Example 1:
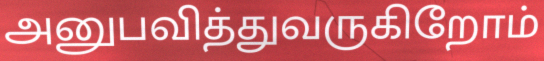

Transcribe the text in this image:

அனுபவித்துவருகிறோம்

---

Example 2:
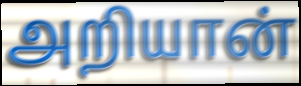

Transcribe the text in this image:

அறியான்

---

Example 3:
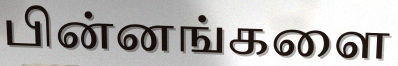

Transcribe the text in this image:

பின்னங்களை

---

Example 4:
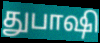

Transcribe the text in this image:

துபாஷி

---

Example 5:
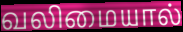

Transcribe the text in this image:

வலிமையால்